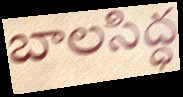
బాలసిద్ధ